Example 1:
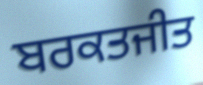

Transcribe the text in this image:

ਬਰਕਤਜੀਤ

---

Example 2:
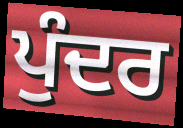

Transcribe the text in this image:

ਪੁੰਦਰ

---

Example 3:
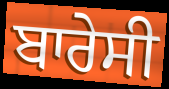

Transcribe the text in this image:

ਬਾਰੇਸੀ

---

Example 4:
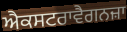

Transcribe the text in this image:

ਐਕਸਟਰਾਵੈਗਨਜ਼ਾ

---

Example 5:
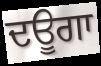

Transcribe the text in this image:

ਦਊਗਾ